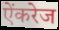
ऐंकरेज